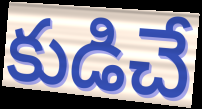
కుడిచే